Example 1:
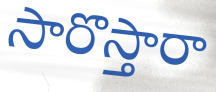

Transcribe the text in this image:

సారొస్తారా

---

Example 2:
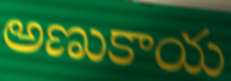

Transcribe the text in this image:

అణుకాయ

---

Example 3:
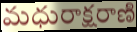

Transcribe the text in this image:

మధురాక్షరాణి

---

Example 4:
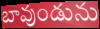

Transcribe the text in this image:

బావుండును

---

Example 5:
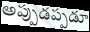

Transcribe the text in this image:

అప్పుడప్పడూ